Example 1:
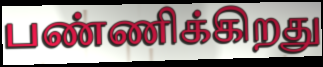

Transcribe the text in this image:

பண்ணிக்கிறது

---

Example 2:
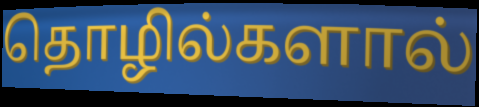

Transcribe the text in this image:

தொழில்களால்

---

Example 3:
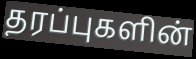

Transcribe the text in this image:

தரப்புகளின்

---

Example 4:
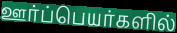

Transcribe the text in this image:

ஊர்ப்பெயர்களில்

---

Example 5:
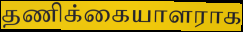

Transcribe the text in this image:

தணிக்கையாளராக